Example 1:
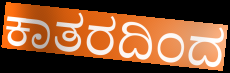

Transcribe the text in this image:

ಕಾತರದಿಂದ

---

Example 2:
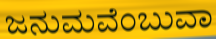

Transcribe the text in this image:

ಜನುಮವೆಂಬುವಾ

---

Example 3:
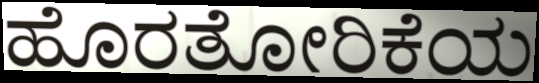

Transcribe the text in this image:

ಹೊರತೋರಿಕೆಯ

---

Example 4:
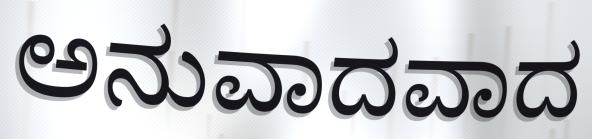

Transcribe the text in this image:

ಅನುವಾದವಾದ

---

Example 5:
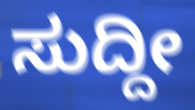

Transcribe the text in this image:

ಸುದ್ದೀ